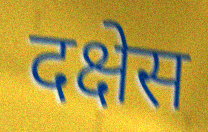
दक्षेस